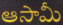
ఆసామీ